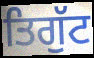
ਤਿਗੁੱਟ